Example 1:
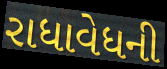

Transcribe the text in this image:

રાધાવેધની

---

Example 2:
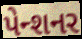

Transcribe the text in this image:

પેન્શનર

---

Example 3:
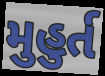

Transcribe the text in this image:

મુહુર્ત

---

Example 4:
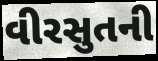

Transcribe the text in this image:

વીરસુતની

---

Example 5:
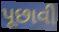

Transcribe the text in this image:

પૂછાવી